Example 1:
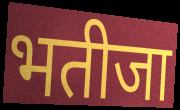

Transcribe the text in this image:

भतीजा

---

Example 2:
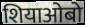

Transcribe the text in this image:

शियाओबो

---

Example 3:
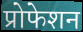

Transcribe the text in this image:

प्रोफेशन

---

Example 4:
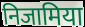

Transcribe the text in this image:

निजामिया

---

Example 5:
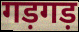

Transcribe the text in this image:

गड़गड़